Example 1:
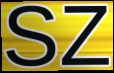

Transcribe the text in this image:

SZ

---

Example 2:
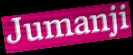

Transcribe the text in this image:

Jumanji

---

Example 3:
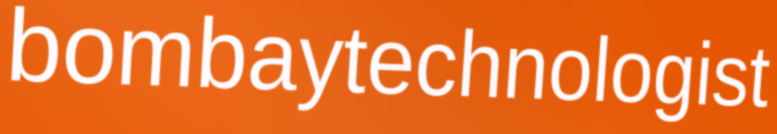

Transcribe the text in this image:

bombaytechnologist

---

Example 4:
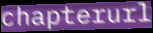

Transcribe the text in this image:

chapterurl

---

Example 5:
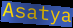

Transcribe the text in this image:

Asatya